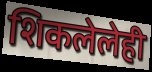
शिकलेलेही